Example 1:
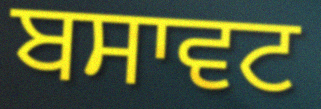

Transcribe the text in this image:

ਬਸਾਵਟ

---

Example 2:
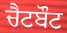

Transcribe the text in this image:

ਚੈਟਬੌਟ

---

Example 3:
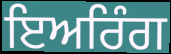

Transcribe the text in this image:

ਇਅਰਿੰਗ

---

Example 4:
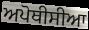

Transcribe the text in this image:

ਅਪੋਥੀਸੀਆ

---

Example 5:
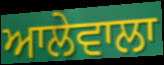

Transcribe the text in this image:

ਆਲੇਵਾਲਾ